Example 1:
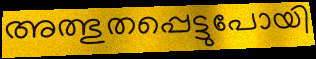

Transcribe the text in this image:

അത്ഭുതപ്പെട്ടുപോയി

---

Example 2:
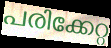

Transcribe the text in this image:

പരിക്കേറ്റ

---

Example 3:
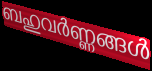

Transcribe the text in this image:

ബഹുവർണ്ണങ്ങൾ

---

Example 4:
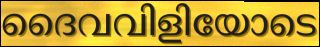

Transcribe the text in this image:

ദൈവവിളിയോടെ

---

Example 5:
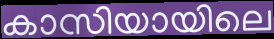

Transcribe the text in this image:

കാസിയായിലെ